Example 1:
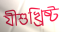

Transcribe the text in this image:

যীশুখ্রিষ্ট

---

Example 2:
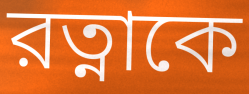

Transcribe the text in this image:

রত্নাকে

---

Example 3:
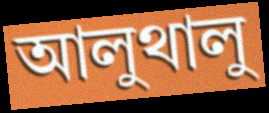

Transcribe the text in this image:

আলুথালু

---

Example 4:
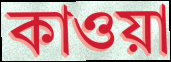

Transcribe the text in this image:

কাওয়া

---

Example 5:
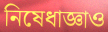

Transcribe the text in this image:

নিষেধাজ্ঞাও